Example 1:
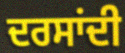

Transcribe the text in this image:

ਦਰਸਾਂਦੀ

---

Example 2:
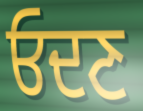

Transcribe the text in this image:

ਓਦਣ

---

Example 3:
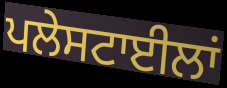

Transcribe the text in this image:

ਪਲੇਸਟਾਈਲਾਂ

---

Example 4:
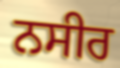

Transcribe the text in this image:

ਨਸੀਰ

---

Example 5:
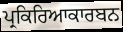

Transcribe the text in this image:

ਪ੍ਰਕਿਰਿਆਕਾਰਬਨ